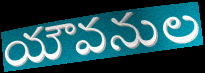
యౌవనుల